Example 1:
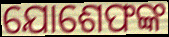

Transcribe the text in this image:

ଯୋଶେଫଙ୍କ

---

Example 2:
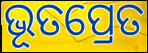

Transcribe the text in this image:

ଭୂତପ୍ରେତ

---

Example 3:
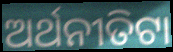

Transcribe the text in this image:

ଅର୍ଥନୀତିଟା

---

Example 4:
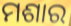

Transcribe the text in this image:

ମଶାର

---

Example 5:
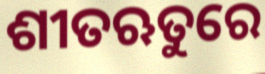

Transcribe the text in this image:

ଶୀତଋତୁରେ